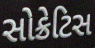
સોક્રેટિસ